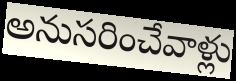
అనుసరించేవాళ్లు